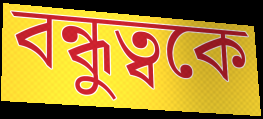
বন্ধুত্বকে